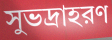
সুভদ্রাহরণ